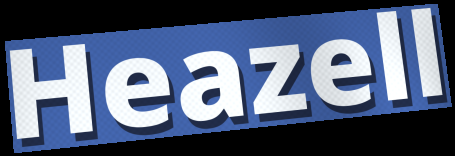
Heazell